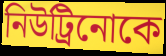
নিউট্রিনোকে